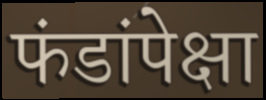
फंडांपेक्षा